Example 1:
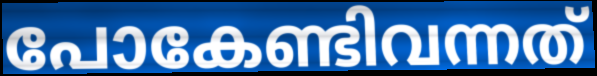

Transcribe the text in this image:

പോകേണ്ടിവന്നത്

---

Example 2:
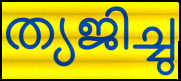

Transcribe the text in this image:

ത്യജിച്ചു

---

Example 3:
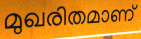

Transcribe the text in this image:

മുഖരിതമാണ്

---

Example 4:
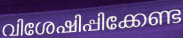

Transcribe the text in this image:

വിശേഷിപ്പിക്കേണ്ട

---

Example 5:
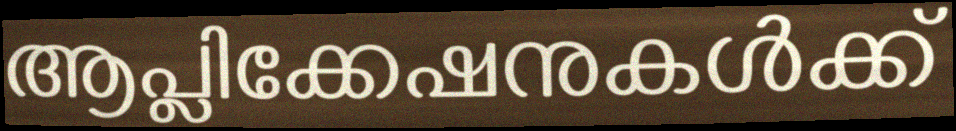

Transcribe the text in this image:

ആപ്ലിക്കേഷനുകൾക്ക്